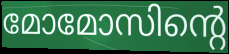
മോമോസിന്റെ